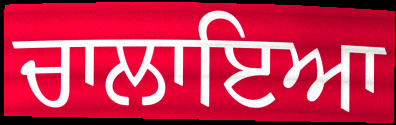
ਚਾਲਾਇਆ